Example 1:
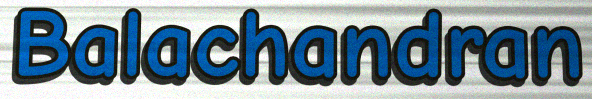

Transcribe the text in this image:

Balachandran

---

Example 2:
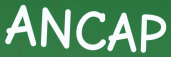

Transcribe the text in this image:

ANCAP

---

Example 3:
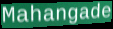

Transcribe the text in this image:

Mahangade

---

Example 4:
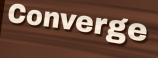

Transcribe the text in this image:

Converge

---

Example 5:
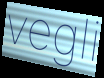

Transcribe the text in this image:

vegli